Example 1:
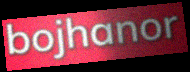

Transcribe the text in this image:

bojhanor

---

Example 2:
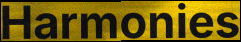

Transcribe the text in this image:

Harmonies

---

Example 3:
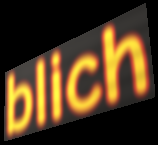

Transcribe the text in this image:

blich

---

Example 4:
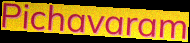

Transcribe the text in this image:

Pichavaram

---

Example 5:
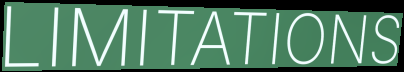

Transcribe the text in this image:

LIMITATIONS